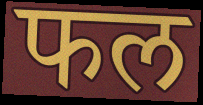
फल